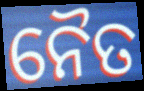
ନୈତ